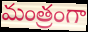
మంత్రంగా